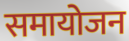
समायोजन